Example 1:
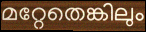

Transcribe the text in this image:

മറ്റേതെങ്കിലും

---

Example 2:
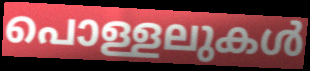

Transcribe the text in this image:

പൊള്ളലുകൾ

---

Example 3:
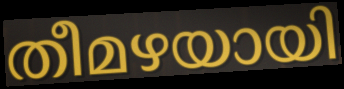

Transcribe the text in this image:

തീമഴയായി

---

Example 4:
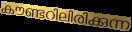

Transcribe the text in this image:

കൗണ്ടറിലിരിക്കുന്ന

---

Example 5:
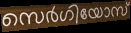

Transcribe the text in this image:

സെർഗിയോസ്